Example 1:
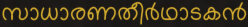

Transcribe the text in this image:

സാധാരണതീർഥാടകൻ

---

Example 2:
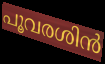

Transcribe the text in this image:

പൂവരശിൻ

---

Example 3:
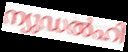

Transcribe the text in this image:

ന്യുഡൽഹി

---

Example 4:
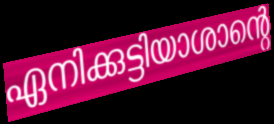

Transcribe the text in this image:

ഏനിക്കുട്ടിയാശാന്റെ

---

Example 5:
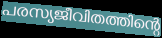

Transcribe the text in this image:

പരസ്യജീവിതത്തിന്റെ